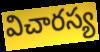
విచారస్య